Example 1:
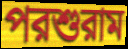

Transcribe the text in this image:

পরশুরাম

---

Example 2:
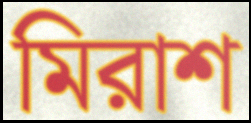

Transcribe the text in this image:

মিরাশ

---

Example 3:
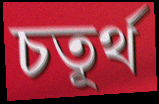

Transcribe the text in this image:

চতূর্থ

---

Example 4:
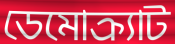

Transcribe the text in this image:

ডেমোক্র্যাট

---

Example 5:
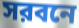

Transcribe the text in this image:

সরবনে